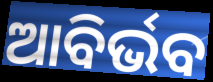
ଆବିର୍ଭବ